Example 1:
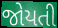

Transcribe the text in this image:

જોયતી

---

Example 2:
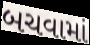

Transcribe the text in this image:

બચવામાં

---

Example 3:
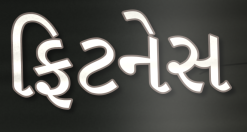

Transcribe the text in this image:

ફિટનેસ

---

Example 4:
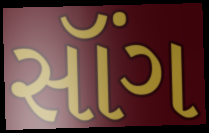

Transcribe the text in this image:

સૉંગ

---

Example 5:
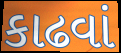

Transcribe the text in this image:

કાઢવાં